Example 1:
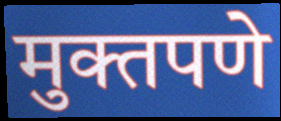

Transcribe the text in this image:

मुक्तपणे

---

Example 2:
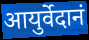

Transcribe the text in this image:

आयुर्वेदानं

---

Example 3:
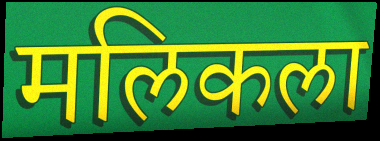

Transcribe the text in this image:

मलिकला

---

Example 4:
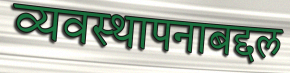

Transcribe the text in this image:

व्यवस्थापनाबद्दल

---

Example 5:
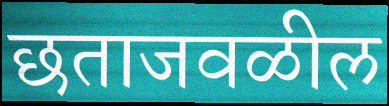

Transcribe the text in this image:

छताजवळील